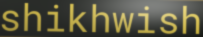
shikhwish